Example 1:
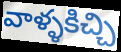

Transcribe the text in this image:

వాళ్ళకిచ్చి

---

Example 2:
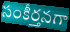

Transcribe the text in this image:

సంకీర్తనగా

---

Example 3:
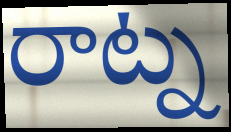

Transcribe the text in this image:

రాట్న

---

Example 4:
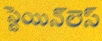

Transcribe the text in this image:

స్టెయిన్‌లెస్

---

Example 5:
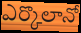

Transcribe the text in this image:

ఎర్కొలానో